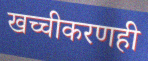
खच्चीकरणही